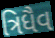
ત્રિધૈવ